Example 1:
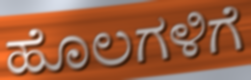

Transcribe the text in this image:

ಹೊಲಗಳಿಗೆ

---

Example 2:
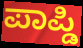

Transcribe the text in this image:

ಪಾಪ್ಡಿ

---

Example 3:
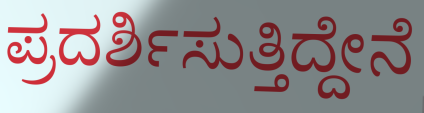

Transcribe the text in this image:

ಪ್ರದರ್ಶಿಸುತ್ತಿದ್ದೇನೆ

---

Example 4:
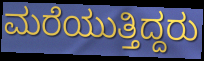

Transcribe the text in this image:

ಮರೆಯುತ್ತಿದ್ದರು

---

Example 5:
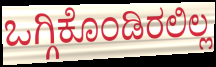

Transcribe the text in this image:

ಒಗ್ಗಿಕೊಂಡಿರಲಿಲ್ಲ